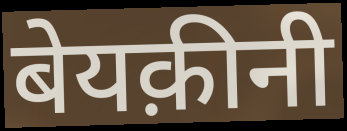
बेयक़ीनी